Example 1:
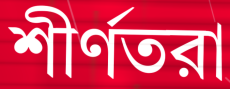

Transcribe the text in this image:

শীর্ণতরা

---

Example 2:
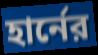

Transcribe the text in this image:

হার্নের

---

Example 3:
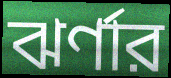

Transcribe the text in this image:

ঝর্ণার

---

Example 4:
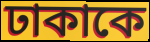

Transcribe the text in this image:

ঢাকাকে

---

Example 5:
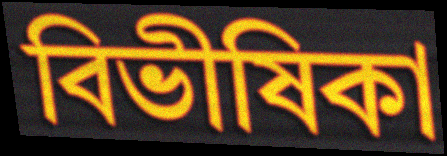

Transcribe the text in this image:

বিভীষিকা